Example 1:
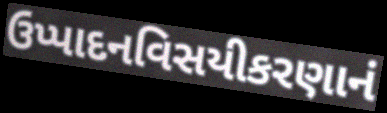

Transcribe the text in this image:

ઉપ્પાદનવિસયીકરણાનં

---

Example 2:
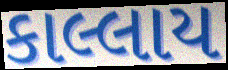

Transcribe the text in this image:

કાલ્લાય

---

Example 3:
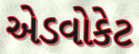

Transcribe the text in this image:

એડવોકેટ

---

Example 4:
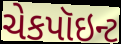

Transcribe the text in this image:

ચેકપૉઇન્ટ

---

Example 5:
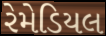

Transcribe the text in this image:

રેમેડિયલ